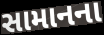
સામાનના